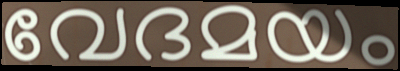
വേദമയം